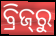
ବ୍ରିଜ୍‌ରୁ